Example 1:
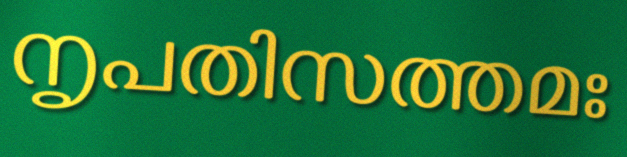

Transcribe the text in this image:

നൃപതിസത്തമഃ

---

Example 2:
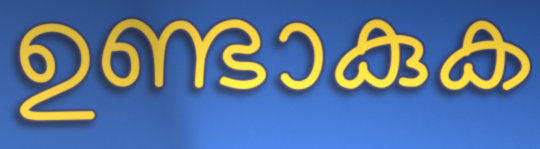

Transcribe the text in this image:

ഉണ്ടാകുക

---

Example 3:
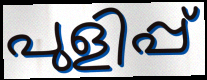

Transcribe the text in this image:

പുളിപ്പ്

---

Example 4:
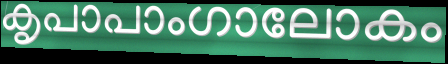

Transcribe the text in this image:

കൃപാപാംഗാലോകം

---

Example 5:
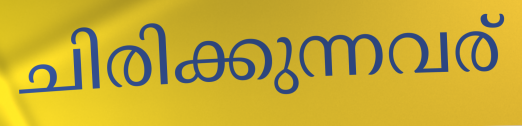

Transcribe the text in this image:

ചിരിക്കുന്നവര്